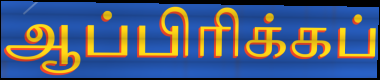
ஆப்பிரிக்கப்